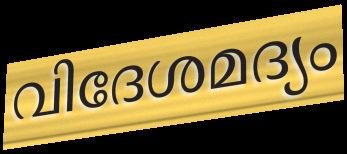
വിദേശമദ്യം